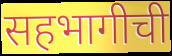
सहभागीची